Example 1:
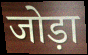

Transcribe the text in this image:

जोड़ा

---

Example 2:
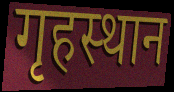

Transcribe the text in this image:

गृहस्थान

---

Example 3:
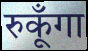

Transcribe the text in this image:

रुकूँगा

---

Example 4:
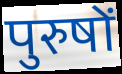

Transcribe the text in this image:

पुरुषों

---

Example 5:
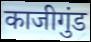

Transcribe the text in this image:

काजीगुंड